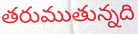
తరుముతున్నది